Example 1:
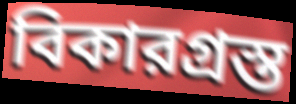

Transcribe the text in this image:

বিকারগ্রস্ত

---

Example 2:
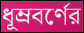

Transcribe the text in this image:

ধূম্রবর্ণের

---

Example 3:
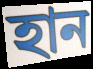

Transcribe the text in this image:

হান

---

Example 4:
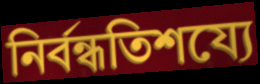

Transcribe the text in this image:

নির্বন্ধতিশয্যে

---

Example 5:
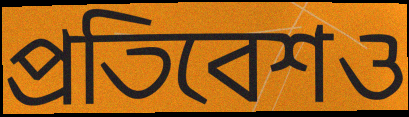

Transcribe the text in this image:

প্রতিবেশও